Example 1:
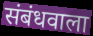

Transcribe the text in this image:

संबंधवाला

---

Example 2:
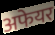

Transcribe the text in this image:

अफेयर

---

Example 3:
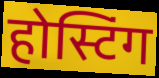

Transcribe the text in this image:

होस्टिंग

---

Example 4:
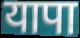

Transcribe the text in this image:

यापा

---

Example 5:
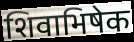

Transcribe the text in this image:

शिवाभिषेक